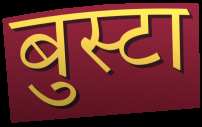
बुस्टा